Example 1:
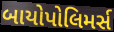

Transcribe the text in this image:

બાયોપોલિમર્સ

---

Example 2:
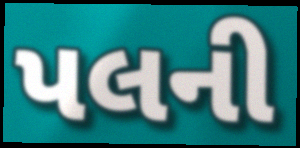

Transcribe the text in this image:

પલની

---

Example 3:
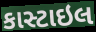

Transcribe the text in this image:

કાસ્ટાઇલ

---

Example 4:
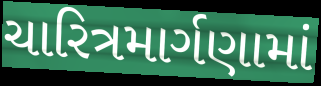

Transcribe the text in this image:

ચારિત્રમાર્ગણામાં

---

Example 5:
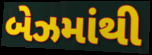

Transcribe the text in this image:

બેઝમાંથી